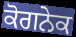
ਕੋਗਨੇਕ